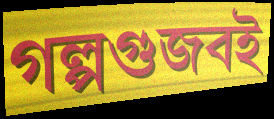
গল্পগুজবই